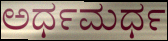
ಅರ್ಧಮರ್ಧ